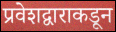
प्रवेशद्वाराकडून